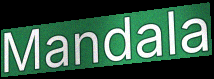
Mandala